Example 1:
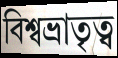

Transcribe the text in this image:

বিশ্বভ্রাতৃত্ব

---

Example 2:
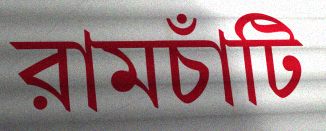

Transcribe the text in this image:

রামচাঁটি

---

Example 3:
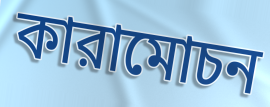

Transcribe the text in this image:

কারামোচন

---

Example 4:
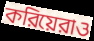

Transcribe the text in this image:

করিয়েরাও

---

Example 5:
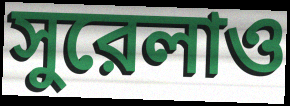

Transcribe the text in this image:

সুরেলাও